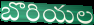
బొరియల